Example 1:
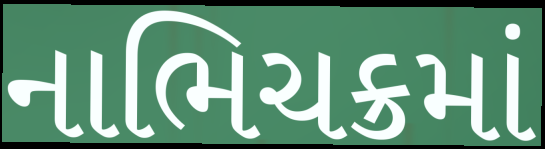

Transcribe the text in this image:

નાભિચક્રમાં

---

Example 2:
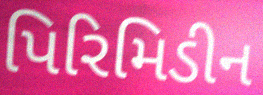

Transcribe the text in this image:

પિરિમિડીન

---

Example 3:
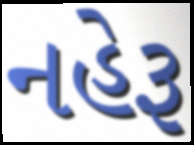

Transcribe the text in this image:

નહેરૂ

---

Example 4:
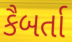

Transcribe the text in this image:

કૈબર્તા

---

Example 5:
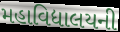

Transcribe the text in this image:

મહાવિદ્યાલયની